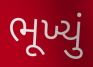
ભૂખ્યું